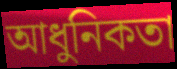
আধুনিকতা